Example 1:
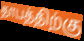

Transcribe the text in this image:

தாபத்திற்கு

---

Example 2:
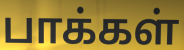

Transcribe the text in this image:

பாக்கள்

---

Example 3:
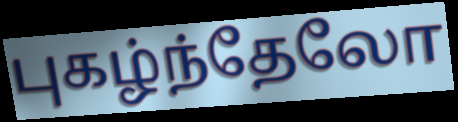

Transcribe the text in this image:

புகழ்ந்தேலோ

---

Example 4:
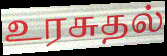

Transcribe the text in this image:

உரசுதல்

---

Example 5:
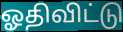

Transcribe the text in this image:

ஓதிவிட்டு